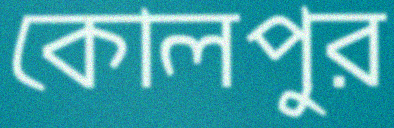
কোলপুর